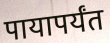
पायापर्यंत